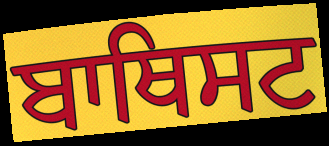
ਬਾਥਿਸਟ